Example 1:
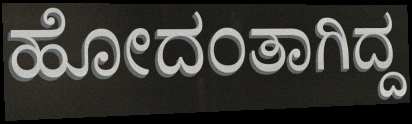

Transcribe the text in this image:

ಹೋದಂತಾಗಿದ್ದ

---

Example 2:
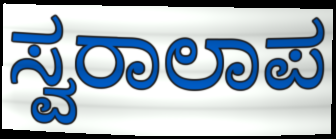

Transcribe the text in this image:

ಸ್ವರಾಲಾಪ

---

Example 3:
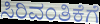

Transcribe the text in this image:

ಸಿರಿವಂತಿಕೆಗೆ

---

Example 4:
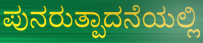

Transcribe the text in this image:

ಪುನರುತ್ಪಾದನೆಯಲ್ಲಿ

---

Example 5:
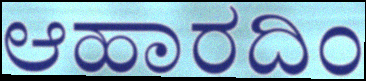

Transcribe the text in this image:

ಆಹಾರದಿಂ